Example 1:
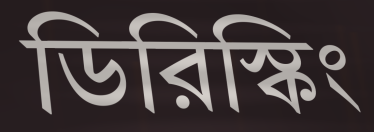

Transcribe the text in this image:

ডিরিস্কিং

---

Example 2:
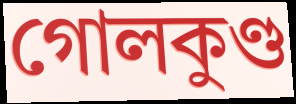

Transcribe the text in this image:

গোলকুণ্ড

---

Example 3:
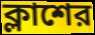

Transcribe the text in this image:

ক্লাশের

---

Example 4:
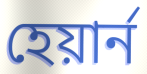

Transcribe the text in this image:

হেয়ার্ন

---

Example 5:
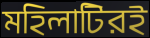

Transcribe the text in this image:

মহিলাটিরই